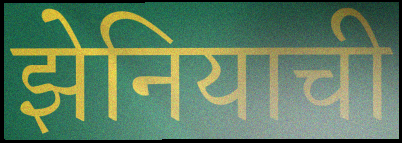
झेनियाची